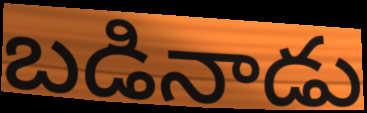
బడినాడు